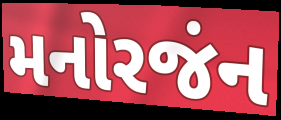
મનોરજંન